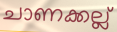
ചാണക്കല്ല്